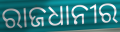
ରାଜଧାନୀର